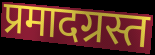
प्रमादग्रस्त